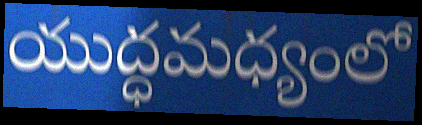
యుద్ధమధ్యంలో